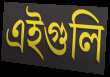
এইগুলি